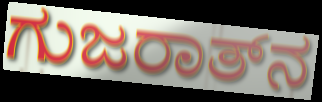
ಗುಜರಾತ್‍ನ